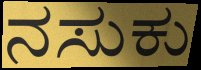
ನಸುಕು